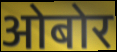
ओबोर